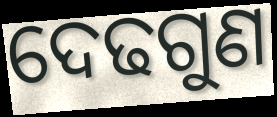
ଦେଢଗୁଣ